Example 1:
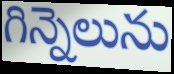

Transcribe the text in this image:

గిన్నెలును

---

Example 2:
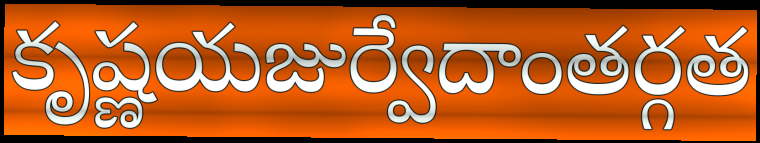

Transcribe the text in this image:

కృష్ణయజుర్వేదాంతర్గత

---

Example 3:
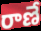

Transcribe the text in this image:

రాణే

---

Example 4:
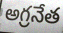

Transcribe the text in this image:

అగ్రనేత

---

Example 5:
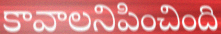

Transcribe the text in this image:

కావాలనిపించింది